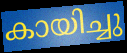
കായിച്ചു